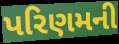
પરિણમની